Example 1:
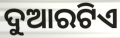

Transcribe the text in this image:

ଦୁଆରଟିଏ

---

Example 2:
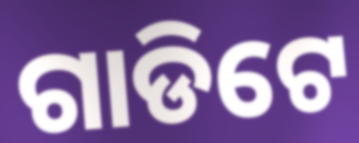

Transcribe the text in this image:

ଗାଡିଟେ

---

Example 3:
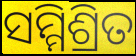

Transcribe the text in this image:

ସମ୍ମିଶ୍ରିତ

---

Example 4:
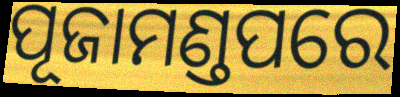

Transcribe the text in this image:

ପୂଜାମଣ୍ଡପରେ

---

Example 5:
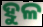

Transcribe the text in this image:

ହୁଳ